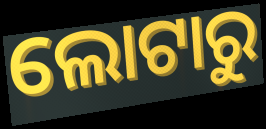
ଲୋଟାରୁ